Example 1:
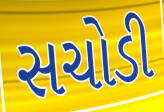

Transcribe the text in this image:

સચોડી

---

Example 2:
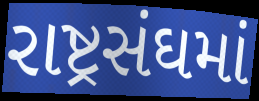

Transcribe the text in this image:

રાષ્ટ્રસંઘમાં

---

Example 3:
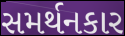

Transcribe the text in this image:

સમર્થનકાર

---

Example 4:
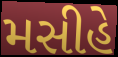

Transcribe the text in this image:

મસીહે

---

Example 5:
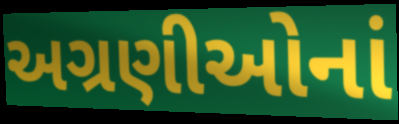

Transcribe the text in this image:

અગ્રણીઓનાં